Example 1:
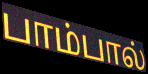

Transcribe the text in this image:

பாம்பால்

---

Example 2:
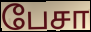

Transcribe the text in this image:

பேசா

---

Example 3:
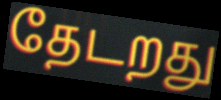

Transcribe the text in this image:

தேடறது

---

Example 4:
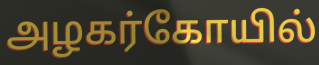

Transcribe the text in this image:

அழகர்கோயில்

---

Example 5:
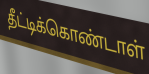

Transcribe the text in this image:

தீட்டிக்கொண்டாள்